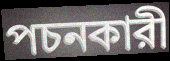
পচনকারী